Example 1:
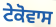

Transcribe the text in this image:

ਟੇਕੋਵਾਸ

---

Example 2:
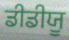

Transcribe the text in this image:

ਡੀਡੀਯੂ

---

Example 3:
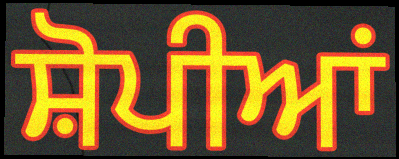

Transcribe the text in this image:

ਸ਼ੋਪੀਆਂ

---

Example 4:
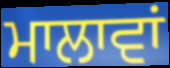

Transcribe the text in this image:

ਮਾਲਾਵਾਂ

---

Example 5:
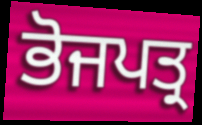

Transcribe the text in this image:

ਭੋਜਪਤ੍ਰ